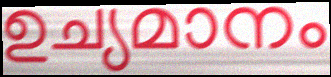
ഉച്യമാനം